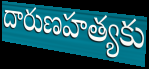
దారుణహత్యకు